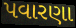
પવારણા